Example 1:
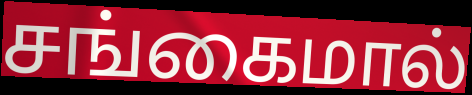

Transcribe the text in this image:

சங்கைமால்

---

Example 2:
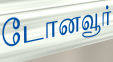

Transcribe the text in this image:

டோனவூர்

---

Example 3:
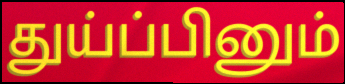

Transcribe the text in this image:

துய்ப்பினும்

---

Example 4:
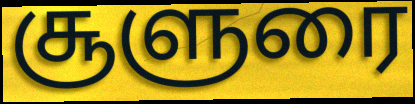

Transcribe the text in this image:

சூளுரை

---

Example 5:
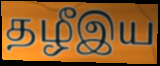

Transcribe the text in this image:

தழீஇய